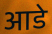
आडे